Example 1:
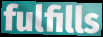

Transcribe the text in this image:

fulfills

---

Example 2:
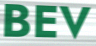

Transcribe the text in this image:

BEV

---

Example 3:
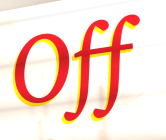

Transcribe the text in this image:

Off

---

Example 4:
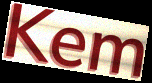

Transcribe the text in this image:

Kem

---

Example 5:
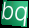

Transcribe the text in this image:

bq